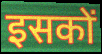
इसकों